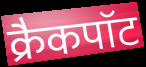
क्रैकपॉट